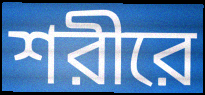
শরীরে